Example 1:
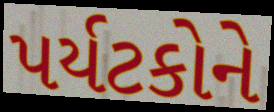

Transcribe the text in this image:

પર્યટકોને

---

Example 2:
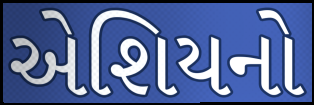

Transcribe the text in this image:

એશિયનો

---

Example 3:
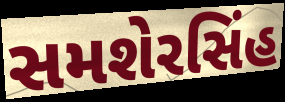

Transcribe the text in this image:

સમશેરસિંહ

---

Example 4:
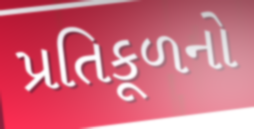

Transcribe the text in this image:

પ્રતિકૂળનો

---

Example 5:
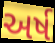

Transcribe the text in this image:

અર્ષ